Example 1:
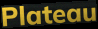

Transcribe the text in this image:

Plateau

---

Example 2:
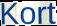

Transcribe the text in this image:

Kort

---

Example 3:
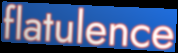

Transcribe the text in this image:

flatulence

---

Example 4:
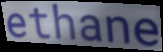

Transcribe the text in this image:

ethane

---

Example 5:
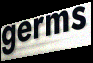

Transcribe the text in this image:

germs